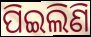
ପିଇଲିଣି